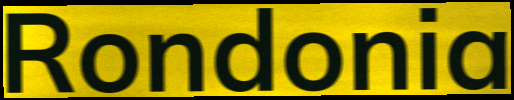
Rondonia